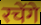
रचेंगे